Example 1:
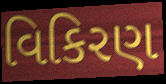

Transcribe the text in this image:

વિકિરણ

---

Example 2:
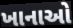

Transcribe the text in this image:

ખાનાઓ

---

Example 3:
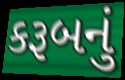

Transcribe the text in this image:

કરૂબનું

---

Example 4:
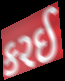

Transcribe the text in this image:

કરઈ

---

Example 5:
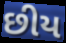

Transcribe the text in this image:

છીય